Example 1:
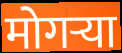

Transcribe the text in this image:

मोगऱ्या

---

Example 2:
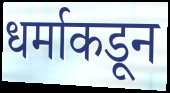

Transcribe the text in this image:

धर्माकडून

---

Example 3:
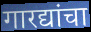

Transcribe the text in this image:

गारद्यांचा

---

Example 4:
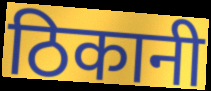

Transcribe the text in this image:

ठिकानी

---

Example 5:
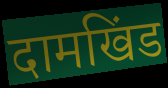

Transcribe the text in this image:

दामखिंड